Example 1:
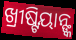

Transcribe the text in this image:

ଖ୍ରୀଷ୍ଟିୟାନ୍ଙ୍କ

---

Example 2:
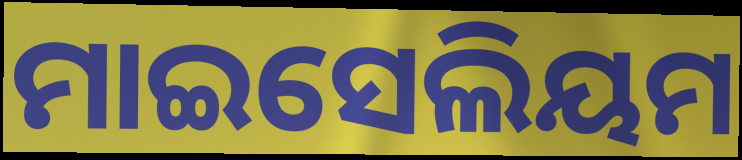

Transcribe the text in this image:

ମାଇସେଲିୟମ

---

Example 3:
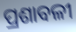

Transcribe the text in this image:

ପ୍ରଶାବଳୀ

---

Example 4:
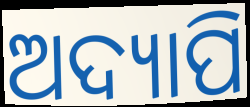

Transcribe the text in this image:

ଅଦ୍ୟାପି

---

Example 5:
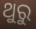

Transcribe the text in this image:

ଥୁରୁ